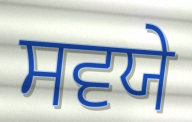
ਸਵਯੇ